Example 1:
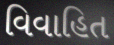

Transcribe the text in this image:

વિવાહિત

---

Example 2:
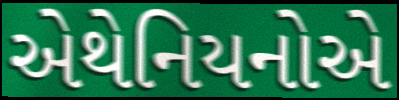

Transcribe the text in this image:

એથેનિયનોએ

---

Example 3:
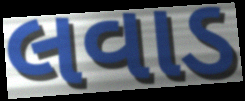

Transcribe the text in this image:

લવાડ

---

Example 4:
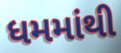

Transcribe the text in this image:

ધમમાંથી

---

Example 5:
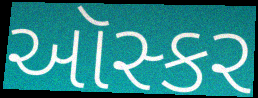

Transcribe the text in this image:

ઑસ્કર